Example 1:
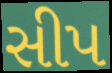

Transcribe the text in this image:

સીપ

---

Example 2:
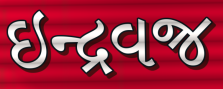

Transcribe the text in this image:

ઇન્દ્રવજ્ર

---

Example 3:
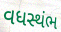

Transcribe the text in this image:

વધસ્થંભ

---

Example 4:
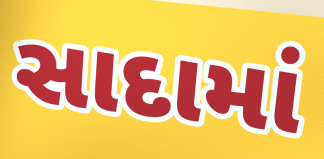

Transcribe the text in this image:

સાદામાં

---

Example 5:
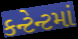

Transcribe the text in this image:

કન્ટેન્ટમાં